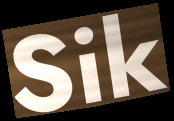
Sik